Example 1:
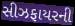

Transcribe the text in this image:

સીઝફાયરની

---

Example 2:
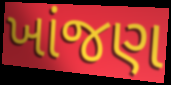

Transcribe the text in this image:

ખાંજણ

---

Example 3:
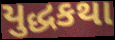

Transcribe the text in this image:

યુદ્ધકથા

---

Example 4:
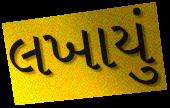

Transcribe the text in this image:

લખાયું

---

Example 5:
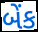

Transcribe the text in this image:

બેંક